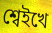
শ্বেইখে